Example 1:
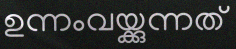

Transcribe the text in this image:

ഉന്നംവയ്ക്കുന്നത്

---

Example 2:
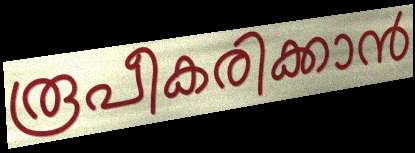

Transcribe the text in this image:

രൂപീകരിക്കാൻ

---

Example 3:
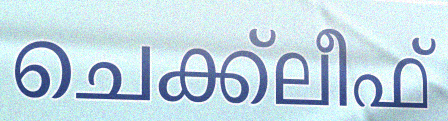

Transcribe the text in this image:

ചെക്ക്ലീഫ്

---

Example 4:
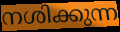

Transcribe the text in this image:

നശിക്കുന്ന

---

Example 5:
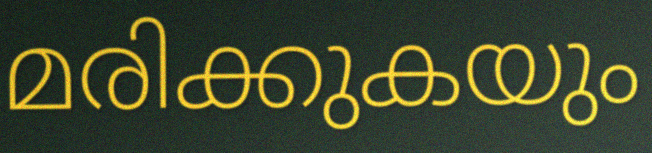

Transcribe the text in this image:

മരിക്കുകയും